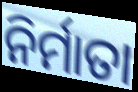
ନିର୍ମାତା